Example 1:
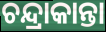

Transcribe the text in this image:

ଚନ୍ଦ୍ରାକାନ୍ତା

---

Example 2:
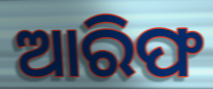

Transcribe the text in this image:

ଆରିଫ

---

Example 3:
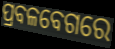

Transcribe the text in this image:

ପ୍ରବଳବେଗରେ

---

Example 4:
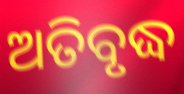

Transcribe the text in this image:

ଅତିବୃଦ୍ଧ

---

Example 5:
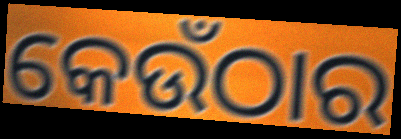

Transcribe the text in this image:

କେଉଁଠାର